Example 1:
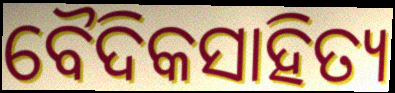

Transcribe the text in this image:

ବୈଦିକସାହିତ୍ୟ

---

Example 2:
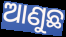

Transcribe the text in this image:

ଆଣୁଛ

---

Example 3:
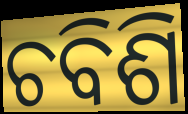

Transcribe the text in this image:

ଚବିଶି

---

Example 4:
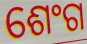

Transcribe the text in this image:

ଶେଂଗ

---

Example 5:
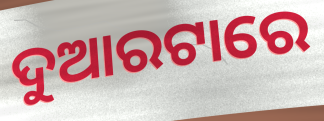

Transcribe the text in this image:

ଦୁଆରଟାରେ